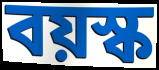
বয়স্ক